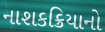
નાશકક્રિયાનો